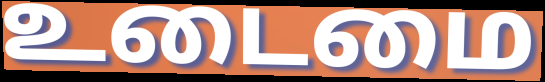
உடைமை